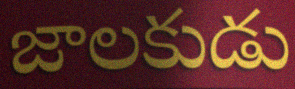
జాలకుడు